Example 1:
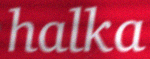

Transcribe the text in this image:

halka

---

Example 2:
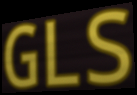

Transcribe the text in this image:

GLS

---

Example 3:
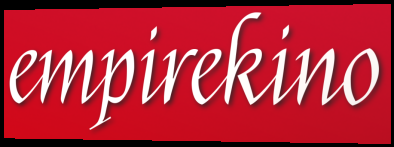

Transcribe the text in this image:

empirekino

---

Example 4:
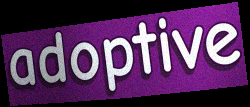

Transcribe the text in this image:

adoptive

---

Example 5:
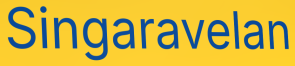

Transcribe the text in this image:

Singaravelan